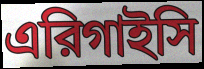
এরিগাইসি